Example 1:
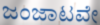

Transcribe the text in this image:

ಜಂಜಾಟವೇ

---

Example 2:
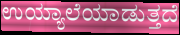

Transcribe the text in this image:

ಉಯ್ಯಾಲೆಯಾಡುತ್ತದೆ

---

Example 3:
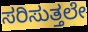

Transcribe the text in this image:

ಸರಿಸುತ್ತಲೇ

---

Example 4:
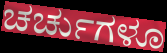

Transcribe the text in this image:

ಚರ್ಚುಗಳೂ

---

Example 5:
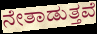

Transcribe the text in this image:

ನೇತಾಡುತ್ತವೆ